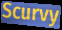
Scurvy